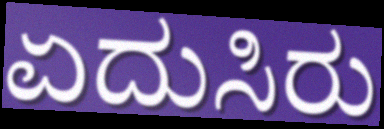
ಏದುಸಿರು